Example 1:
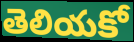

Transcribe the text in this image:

తెలియకో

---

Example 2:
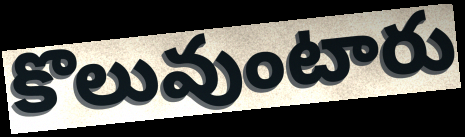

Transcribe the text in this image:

కొలువుంటారు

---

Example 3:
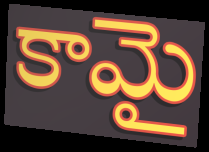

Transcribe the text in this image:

కామై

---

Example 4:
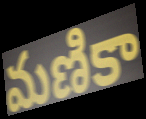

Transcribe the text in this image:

మణికా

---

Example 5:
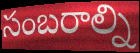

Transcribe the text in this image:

సంబరాల్ని